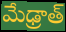
మేఢ్రాత్